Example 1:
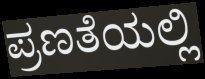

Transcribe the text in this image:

ಪ್ರಣತೆಯಲ್ಲಿ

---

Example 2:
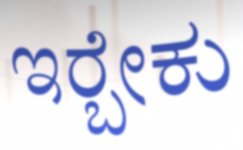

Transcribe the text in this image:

ಇರ‍್ಬೇಕು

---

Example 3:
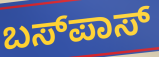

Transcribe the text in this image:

ಬಸ್‍ಪಾಸ್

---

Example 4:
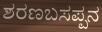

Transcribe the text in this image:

ಶರಣಬಸಪ್ಪನ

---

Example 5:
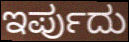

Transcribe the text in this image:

ಇರ್ಪುದು